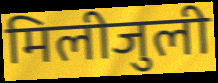
मिलीजुली